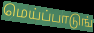
மெய்ப்பாடுங்